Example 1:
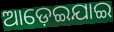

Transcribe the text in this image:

ଆଡ଼େଇଯାଇ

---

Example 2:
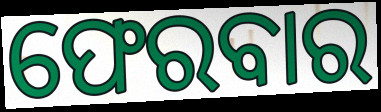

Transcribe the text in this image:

ଫେରବାର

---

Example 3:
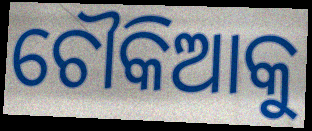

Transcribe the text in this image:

ଚୌକିଆକୁ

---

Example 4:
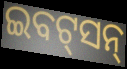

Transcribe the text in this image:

ଇବଟ୍‌ସନ୍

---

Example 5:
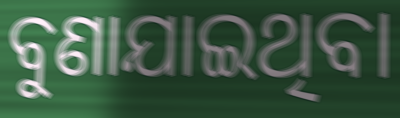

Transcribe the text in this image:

ବୁଣାଯାଇଥିବା